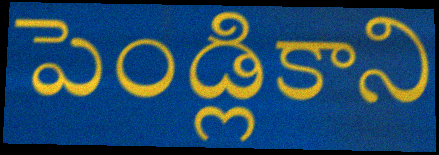
పెండ్లికాని